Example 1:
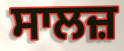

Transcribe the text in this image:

ਸਾਲਜ਼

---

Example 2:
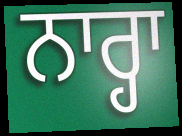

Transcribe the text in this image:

ਨਾਰ੍ਹਾ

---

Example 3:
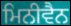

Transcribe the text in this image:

ਮਿਨੀਵੈਨ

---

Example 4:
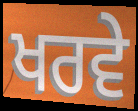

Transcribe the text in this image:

ਖਰਵੇ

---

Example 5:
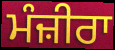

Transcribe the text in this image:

ਮੰਜ਼ੀਰਾ